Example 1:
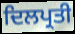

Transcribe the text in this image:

ਦਿਲਪ੍ਰਤੀ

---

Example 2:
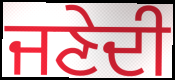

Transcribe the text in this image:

ਜਣੇਦੀ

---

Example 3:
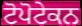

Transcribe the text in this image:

ਟੋਪੋਟੇਕਨ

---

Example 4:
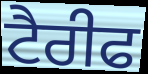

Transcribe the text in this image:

ਟੈਰੀਫ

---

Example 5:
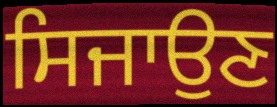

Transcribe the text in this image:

ਸਿਜਾਉਣ